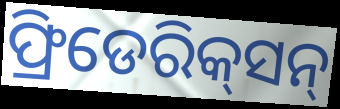
ଫ୍ରିଡେରିକ୍‌ସନ୍